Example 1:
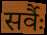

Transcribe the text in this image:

सर्वैः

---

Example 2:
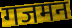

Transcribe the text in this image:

गजमन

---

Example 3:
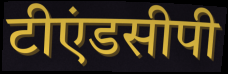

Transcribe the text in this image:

टीएंडसीपी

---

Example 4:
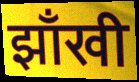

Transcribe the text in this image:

झाँखी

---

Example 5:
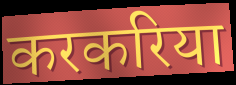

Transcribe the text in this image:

करकरिया